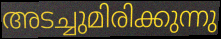
അടച്ചുമിരിക്കുന്നു